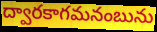
ద్వారకాగమనంబును